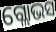
ଗ୍ଲୋଭସ